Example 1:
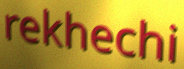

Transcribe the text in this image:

rekhechi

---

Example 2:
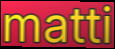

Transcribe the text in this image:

matti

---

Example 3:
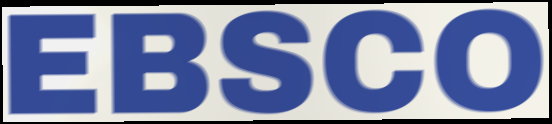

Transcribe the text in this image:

EBSCO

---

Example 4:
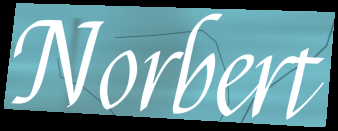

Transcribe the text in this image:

Norbert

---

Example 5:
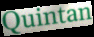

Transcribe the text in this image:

Quintan